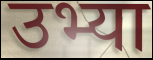
उभ्या